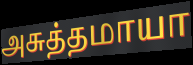
அசுத்தமாயா